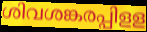
ശിവശങ്കരപ്പിളള